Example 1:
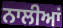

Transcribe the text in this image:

ਨਾਲੀਆਂ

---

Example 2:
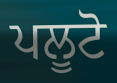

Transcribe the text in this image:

ਪਲੂਟੋ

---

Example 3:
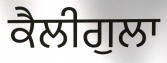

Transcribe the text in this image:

ਕੈਲੀਗੁਲਾ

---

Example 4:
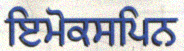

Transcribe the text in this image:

ਇਮੋਕਸਪਿਨ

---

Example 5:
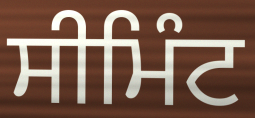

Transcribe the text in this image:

ਸੀਮਿੰਟ